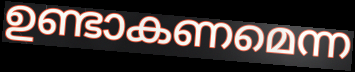
ഉണ്ടാകണമെന്ന